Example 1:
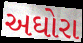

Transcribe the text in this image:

અઘોરા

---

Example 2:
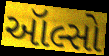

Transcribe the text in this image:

ઑલ્સો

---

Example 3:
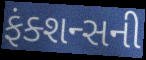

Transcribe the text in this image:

ફંક્શન્સની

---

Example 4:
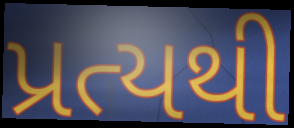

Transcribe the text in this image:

પ્રત્યથી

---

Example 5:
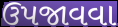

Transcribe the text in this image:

ઉપજાવવા